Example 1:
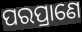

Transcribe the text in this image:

ପରପ୍ରାଣେ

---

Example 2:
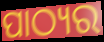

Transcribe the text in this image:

ପାଠ୍ୟର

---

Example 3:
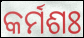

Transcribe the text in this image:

କର୍ମଶଃ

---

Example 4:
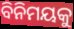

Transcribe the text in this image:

ବିନିମୟକୁ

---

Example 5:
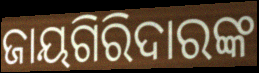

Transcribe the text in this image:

ଜାୟଗିରିଦାରଙ୍କ